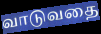
வாடுவதை